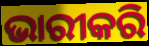
ଭାରୀକରି